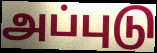
அப்புடு